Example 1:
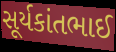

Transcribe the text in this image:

સૂર્યકાંતભાઈ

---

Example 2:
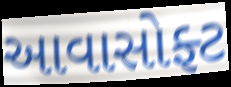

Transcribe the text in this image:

આવાસોફ્ટ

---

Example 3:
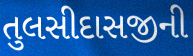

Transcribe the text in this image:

તુલસીદાસજીની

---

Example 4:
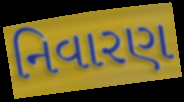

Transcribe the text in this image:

નિવારણ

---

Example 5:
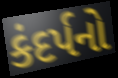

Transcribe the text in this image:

કંદર્પનો